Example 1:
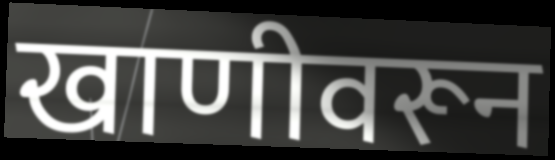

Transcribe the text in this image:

खाणीवरून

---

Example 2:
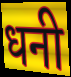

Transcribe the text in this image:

धनी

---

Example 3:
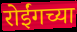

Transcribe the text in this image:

रोईंगच्या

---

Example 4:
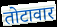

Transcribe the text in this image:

तोटावार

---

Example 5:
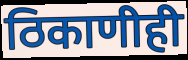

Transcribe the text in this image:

ठिकाणीही